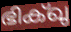
ഭിക്ഖു